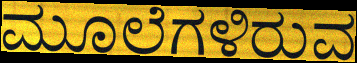
ಮೂಲೆಗಳಿರುವ